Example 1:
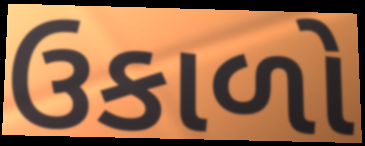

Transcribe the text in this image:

ઉકાળો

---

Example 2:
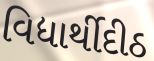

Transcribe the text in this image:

વિદ્યાર્થીદીઠ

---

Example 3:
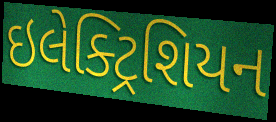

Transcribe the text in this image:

ઇલેક્ટ્રિશિયન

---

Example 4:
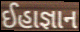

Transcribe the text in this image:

ઈહાજ્ઞાન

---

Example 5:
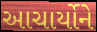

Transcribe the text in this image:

આચાર્યોને